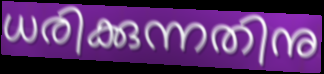
ധരിക്കുന്നതിനു